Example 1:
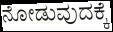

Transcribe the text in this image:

ನೋಡುವುದಕ್ಕೆ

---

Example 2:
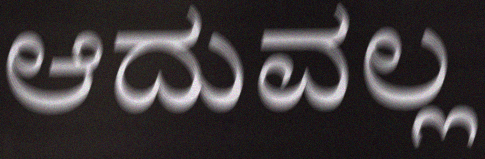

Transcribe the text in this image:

ಆದುವಲ್ಲ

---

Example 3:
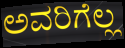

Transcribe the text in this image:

ಅವರಿಗೆಲ್ಲ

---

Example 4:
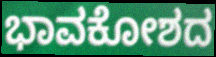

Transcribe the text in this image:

ಭಾವಕೋಶದ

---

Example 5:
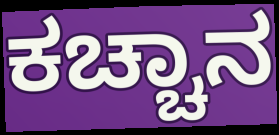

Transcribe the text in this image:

ಕಚ್ಚಾನ